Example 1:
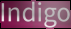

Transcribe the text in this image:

Indigo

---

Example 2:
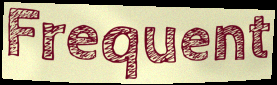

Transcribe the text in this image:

Frequent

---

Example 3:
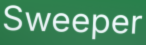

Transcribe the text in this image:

Sweeper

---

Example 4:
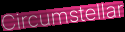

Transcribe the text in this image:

Circumstellar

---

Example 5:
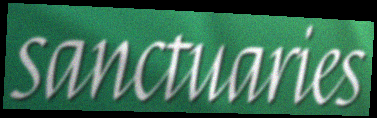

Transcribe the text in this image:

sanctuaries